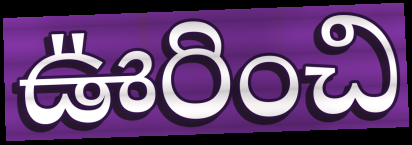
ఊరించి